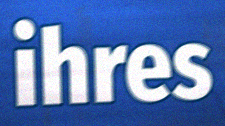
ihres